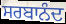
ਸਰਬਾਨੰਦ